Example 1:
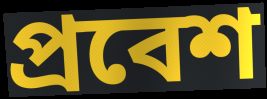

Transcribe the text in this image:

প্ৰবেশ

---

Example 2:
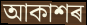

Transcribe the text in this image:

আকাশৰ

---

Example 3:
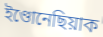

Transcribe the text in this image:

ইণ্ডোনেছিয়াক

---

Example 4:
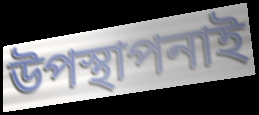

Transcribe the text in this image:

উপস্থাপনাই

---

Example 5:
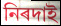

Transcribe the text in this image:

নিৰদাই